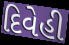
દિવેહી